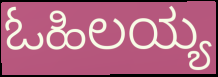
ಓಹಿಲಯ್ಯ